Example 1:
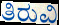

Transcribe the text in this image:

ತಿರುವಿ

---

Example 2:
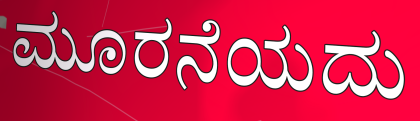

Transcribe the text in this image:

ಮೂರನೆಯದು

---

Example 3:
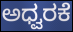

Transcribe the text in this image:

ಅಧ್ವರಕೆ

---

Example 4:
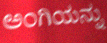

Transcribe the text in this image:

ಅಂಗಿಯನ್ನು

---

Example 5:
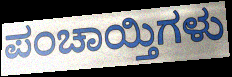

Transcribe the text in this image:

ಪಂಚಾಯ್ತಿಗಳು